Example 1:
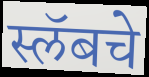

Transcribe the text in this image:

स्लॅबचे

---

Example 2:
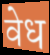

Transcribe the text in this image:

वेध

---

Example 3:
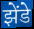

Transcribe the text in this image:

झेंडे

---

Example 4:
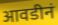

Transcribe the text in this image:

आवडीनं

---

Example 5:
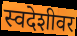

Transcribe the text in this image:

स्वदेशीवर